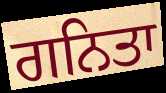
ਗਨਿਤਾ